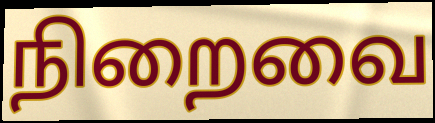
நிறைவை